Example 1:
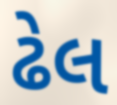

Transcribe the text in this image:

ઢેલ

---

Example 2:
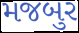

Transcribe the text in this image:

મજબુર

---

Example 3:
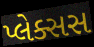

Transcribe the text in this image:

પ્લેક્સસ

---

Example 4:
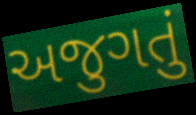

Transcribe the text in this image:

અજુગતું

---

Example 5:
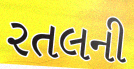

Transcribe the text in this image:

રતલની